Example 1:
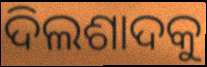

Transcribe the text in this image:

ଦିଲଶାଦକୁ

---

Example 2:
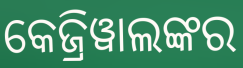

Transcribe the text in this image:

କେଜ୍ରିୱାଲଙ୍କର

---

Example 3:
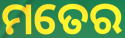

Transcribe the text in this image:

ମତେର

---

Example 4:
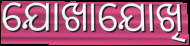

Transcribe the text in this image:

ଯୋଖାଯୋଖି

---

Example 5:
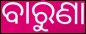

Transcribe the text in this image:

ବାରୁଣା